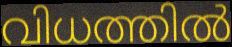
വിധത്തിൽ